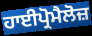
ਹਾਈਪ੍ਰੋਮੈਲੋਜ਼